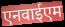
एनवाईएम